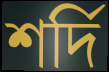
শর্দি